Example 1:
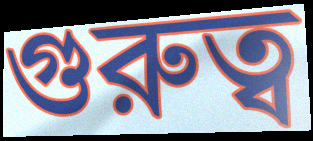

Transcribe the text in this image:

গুরুত্ব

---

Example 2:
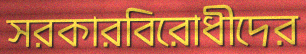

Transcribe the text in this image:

সরকারবিরোধীদের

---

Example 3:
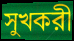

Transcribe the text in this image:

সুখকরী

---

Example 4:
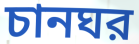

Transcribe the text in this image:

চানঘর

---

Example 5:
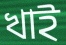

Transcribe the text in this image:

খাই